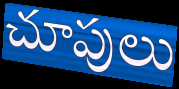
చూపులు